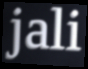
jali